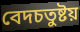
বেদচতুষ্টয়